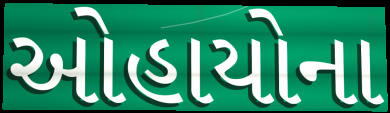
ઓહાયોના